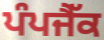
ਪੰਪਜੈੱਕ